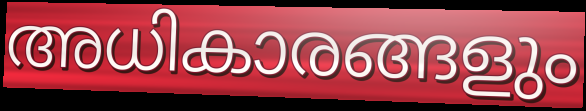
അധികാരങ്ങളും